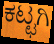
ಕಟ್ಟಗಿ